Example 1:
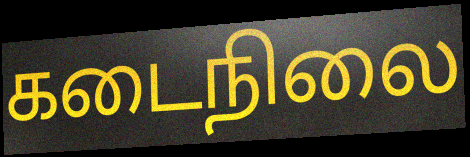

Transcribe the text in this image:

கடைநிலை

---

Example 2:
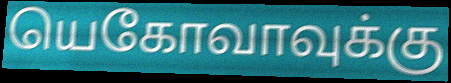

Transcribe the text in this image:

யெகோவாவுக்கு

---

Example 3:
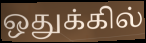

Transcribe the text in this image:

ஒதுக்கில்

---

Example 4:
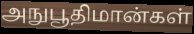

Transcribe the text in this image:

அநுபூதிமான்கள்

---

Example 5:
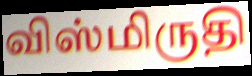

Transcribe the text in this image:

விஸ்மிருதி